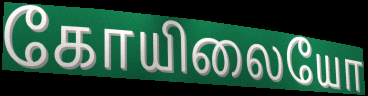
கோயிலையோ